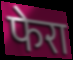
फेरा